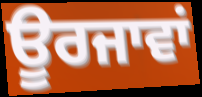
ਊਰਜਾਵਾਂ